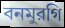
বনমুরগি